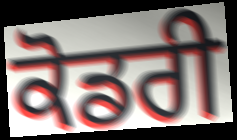
ਕੋਡਰੀ